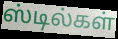
ஸ்டில்கள்